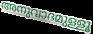
അനുവാദമുള്ളൂ